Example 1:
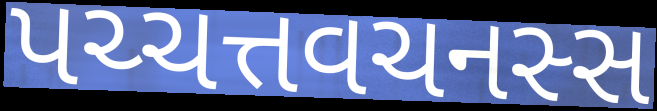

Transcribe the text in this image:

પચ્ચત્તવચનસ્સ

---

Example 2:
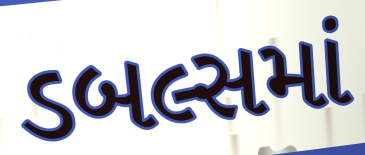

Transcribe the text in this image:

ડબલ્સમાં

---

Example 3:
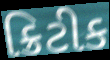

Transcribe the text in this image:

ક્રિટીક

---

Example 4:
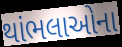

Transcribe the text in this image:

થાંભલાઓના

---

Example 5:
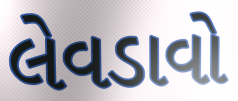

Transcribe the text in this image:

લેવડાવો